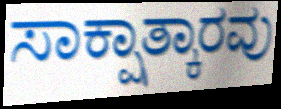
ಸಾಕ್ಷಾತ್ಕಾರವು